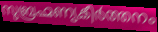
സുബ്രഹ്മണ്യകീർത്തനം